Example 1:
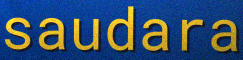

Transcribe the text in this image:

saudara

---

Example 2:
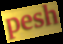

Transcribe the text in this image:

pesh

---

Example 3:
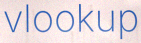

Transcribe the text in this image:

vlookup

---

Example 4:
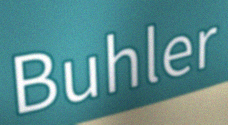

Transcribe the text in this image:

Buhler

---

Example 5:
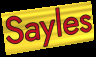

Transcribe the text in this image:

Sayles